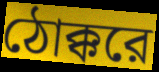
ঠোক্করে